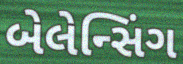
બેલેન્સિંગ